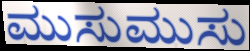
ಮುಸುಮುಸು